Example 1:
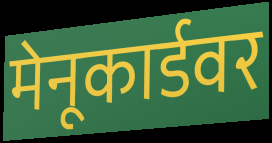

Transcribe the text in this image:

मेनूकार्डवर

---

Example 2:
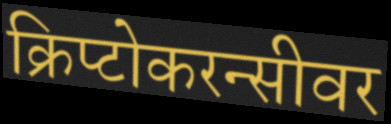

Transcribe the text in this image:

क्रिप्टोकरन्सीवर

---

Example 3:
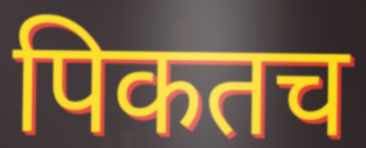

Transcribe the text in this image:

पिकतच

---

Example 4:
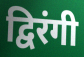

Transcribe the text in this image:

द्विरंगी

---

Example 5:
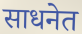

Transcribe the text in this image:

साधनेत